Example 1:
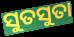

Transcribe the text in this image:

ସୁତସୁତା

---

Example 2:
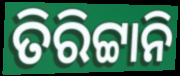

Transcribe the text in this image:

ତିରିଟ୍ଟାନି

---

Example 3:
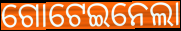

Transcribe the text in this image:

ଗୋଟେଇନେଲା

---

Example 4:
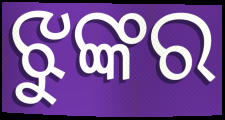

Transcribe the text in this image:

ଝୁଙ୍କର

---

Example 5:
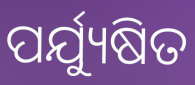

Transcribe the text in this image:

ପର୍ଯ୍ୟୁଷିତ